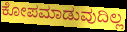
ಕೋಪಮಾಡುವುದಿಲ್ಲ